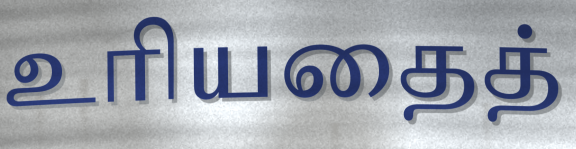
உரியதைத்